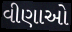
વીણાઓ